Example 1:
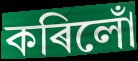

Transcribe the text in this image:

কৰিলোঁ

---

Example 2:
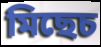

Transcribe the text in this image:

মিছেচ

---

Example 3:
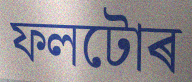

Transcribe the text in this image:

ফলটোৰ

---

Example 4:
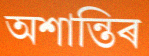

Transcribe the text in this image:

অশান্তিৰ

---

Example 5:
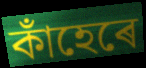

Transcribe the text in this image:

কাঁহেৰে